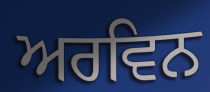
ਅਰਵਿਨ